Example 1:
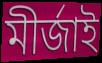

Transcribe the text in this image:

মীর্জাই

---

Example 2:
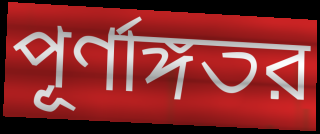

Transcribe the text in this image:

পূর্ণাঙ্গতর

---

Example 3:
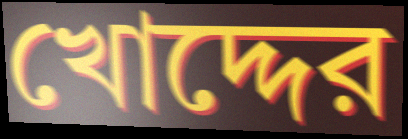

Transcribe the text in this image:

খোদ্দের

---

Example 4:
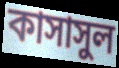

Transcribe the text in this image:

কাসাসুল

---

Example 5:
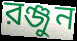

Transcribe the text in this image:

রঞ্জুন